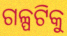
ଗଳ୍ପଟିକୁ